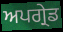
ਅਪਗ੍ਰੇਡ